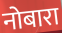
नोबारा